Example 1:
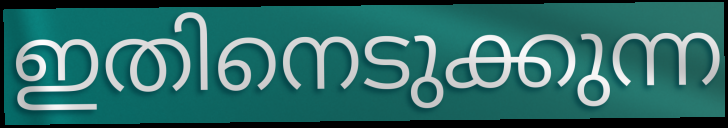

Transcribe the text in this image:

ഇതിനെടുക്കുന്ന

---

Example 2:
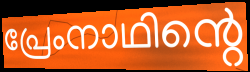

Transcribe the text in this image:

പ്രേംനാഥിന്റെ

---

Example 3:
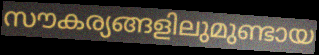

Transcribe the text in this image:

സൗകര്യങ്ങളിലുമുണ്ടായ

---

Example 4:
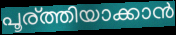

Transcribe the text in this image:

പൂര്ത്തിയാക്കാൻ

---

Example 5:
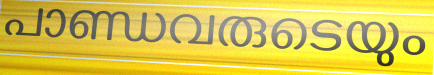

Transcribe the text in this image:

പാണ്ഡവരുടെയും